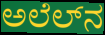
ಅಲೆಲ್‌ನ